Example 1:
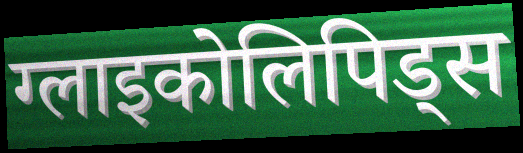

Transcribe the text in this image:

ग्लाइकोलिपिड्स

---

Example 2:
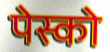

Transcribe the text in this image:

पेस्को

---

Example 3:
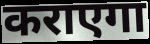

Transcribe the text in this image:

कराएगा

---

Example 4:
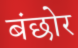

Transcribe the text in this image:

बंछोर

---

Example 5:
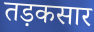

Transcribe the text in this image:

तड़कसार